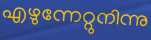
എഴുന്നേറ്റുനിന്നു